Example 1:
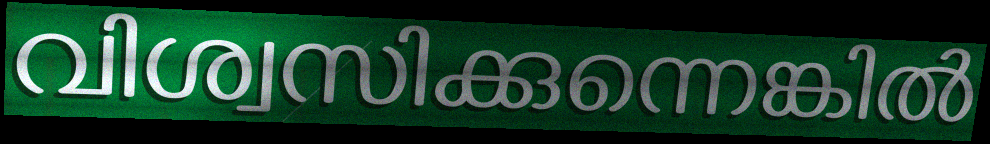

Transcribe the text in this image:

വിശ്വസിക്കുന്നെങ്കിൽ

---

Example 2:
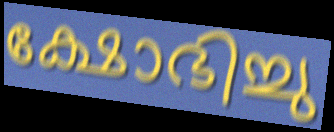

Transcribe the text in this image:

ക്ഷോഭിച്ചു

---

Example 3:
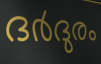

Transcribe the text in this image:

ദർദുരം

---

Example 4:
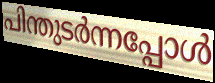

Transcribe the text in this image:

പിന്തുടർന്നപ്പോൾ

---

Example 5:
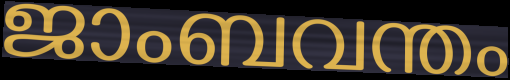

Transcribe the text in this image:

ജാംബവന്തം